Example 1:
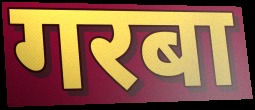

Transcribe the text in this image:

गरबा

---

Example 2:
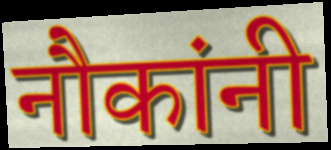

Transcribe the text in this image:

नौकांनी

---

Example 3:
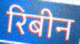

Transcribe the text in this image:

रिबीन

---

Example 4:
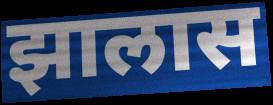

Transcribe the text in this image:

झालास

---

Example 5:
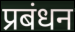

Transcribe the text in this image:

प्रबंधन